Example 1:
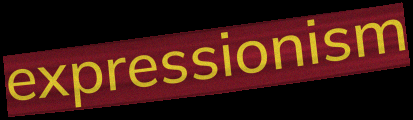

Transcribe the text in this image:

expressionism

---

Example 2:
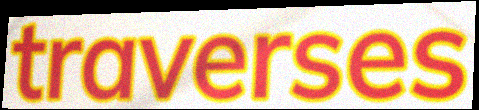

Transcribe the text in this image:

traverses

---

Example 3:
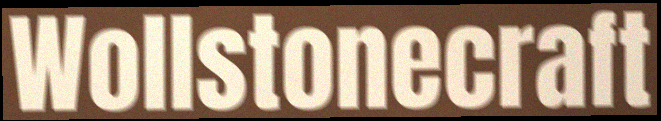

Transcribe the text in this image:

Wollstonecraft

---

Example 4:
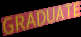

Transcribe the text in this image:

GRADUATE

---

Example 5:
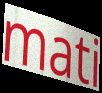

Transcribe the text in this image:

mati